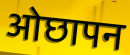
ओछापन